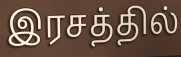
இரசத்தில்